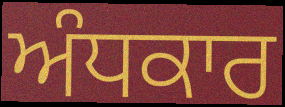
ਅੰਧਕਾਰ